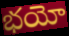
భయో